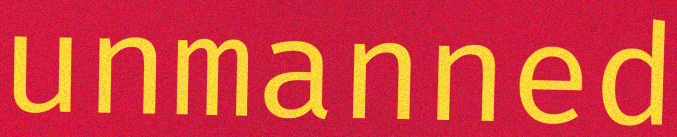
unmanned